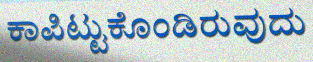
ಕಾಪಿಟ್ಟುಕೊಂಡಿರುವುದು